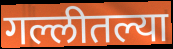
गल्लीतल्या